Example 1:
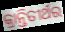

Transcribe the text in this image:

କ୍ରାନ୍ତିତୀର୍ଥର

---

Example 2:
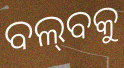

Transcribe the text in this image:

ବଲ୍‌ବକୁ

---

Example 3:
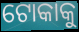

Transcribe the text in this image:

ଟୋକାକୁ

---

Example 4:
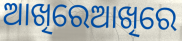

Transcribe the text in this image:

ଆଖିରେଆଖିରେ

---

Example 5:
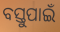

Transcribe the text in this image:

ବସ୍ତୁପାଇଁ